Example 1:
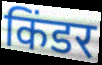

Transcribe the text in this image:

किंडर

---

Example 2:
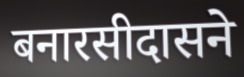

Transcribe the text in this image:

बनारसीदासने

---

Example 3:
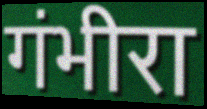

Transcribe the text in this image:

गंभीरा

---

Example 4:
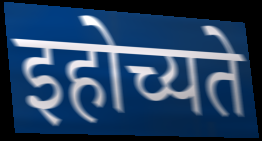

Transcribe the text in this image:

इहोच्यते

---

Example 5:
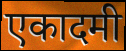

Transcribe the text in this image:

एकादमी